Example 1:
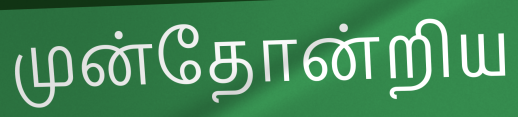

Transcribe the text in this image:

முன்தோன்றிய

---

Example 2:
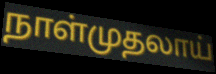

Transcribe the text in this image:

நாள்முதலாய்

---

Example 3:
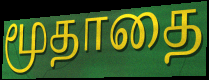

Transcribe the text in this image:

மூதாதை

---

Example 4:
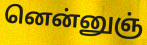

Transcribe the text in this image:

னென்னுஞ்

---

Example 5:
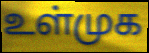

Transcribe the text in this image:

உள்முக